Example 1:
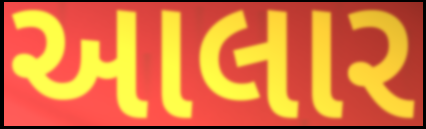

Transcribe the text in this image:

આલાર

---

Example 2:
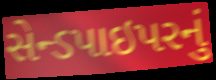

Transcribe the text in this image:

સેન્ડપાઇપરનું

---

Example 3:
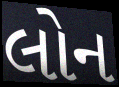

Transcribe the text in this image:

લોન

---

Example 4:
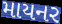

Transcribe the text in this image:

માયનર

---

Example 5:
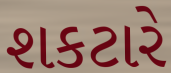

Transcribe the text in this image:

શકટારે